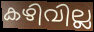
കഴിവില്ല